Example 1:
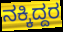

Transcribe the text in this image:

ನಕ್ಕಿದ್ದರ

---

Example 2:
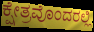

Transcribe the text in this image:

ಕ್ಷೇತ್ರವೊಂದರಲ್ಲಿ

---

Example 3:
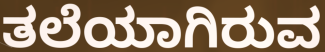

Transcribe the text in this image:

ತಲೆಯಾಗಿರುವ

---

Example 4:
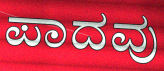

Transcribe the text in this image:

ಪಾದವು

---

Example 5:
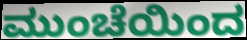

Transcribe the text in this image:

ಮುಂಚೆಯಿಂದ